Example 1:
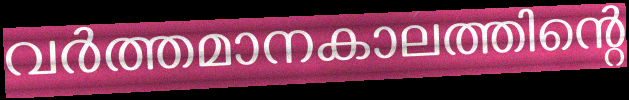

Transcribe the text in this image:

വർത്തമാനകാലത്തിന്റെ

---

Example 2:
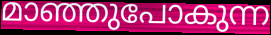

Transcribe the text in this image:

മാഞ്ഞുപോകുന്ന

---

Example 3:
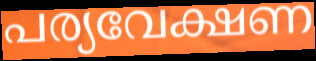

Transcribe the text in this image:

പര്യവേക്ഷണ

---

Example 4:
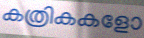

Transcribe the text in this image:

കത്രികകളോ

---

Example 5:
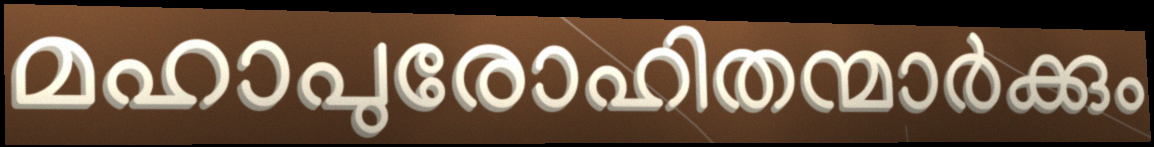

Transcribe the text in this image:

മഹാപുരോഹിതന്മാർക്കും